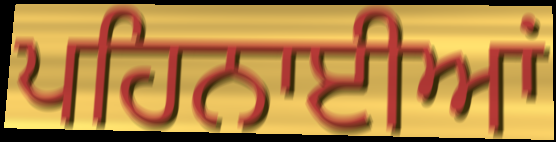
ਪਹਿਨਾਈਆਂ